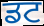
ਡਟ